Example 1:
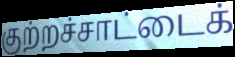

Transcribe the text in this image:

குற்றச்சாட்டைக்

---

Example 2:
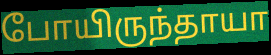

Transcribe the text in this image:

போயிருந்தாயா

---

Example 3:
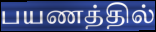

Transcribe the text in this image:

பயணத்தில்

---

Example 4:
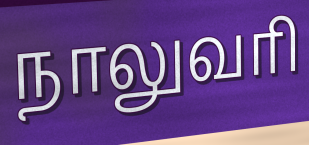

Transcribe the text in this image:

நாலுவரி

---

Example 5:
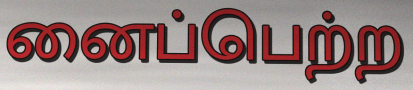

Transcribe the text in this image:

னைப்பெற்ற